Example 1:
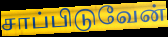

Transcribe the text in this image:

சாப்பிடுவேன்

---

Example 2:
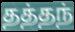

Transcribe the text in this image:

தத்தந்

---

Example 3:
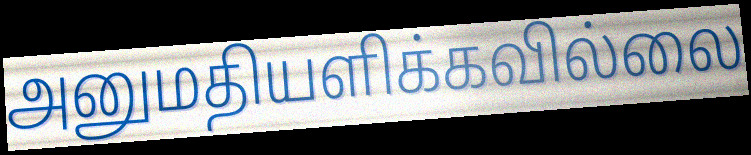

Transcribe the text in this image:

அனுமதியளிக்கவில்லை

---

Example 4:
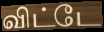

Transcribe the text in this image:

விட்டே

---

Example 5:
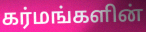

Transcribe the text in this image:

கர்மங்களின்